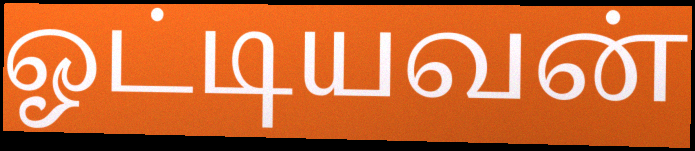
ஓட்டியவன்